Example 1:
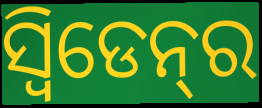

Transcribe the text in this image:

ସ୍ୱିଡେନ୍‌ର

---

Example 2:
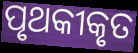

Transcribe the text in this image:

ପୃଥକୀକୃତ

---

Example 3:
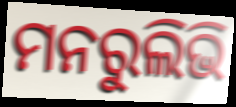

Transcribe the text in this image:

ମନରୁଲିଭି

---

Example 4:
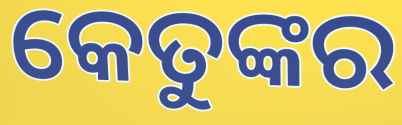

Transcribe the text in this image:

କେତୁଙ୍କର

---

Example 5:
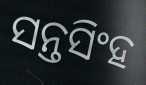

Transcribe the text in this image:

ସନ୍ତସିଂହ